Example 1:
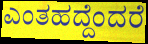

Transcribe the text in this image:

ಎಂತಹದ್ದೆಂದರೆ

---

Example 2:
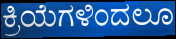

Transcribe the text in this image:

ಕ್ರಿಯೆಗಳಿಂದಲೂ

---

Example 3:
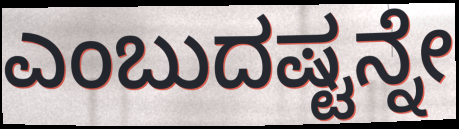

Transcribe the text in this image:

ಎಂಬುದಷ್ಟನ್ನೇ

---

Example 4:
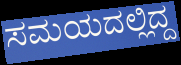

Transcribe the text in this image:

ಸಮಯದಲ್ಲಿದ್ದ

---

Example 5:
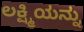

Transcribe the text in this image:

ಲಕ್ಷ್ಮಿಯನ್ನು